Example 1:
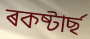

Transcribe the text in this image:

ৰকষ্টাৰ্ছ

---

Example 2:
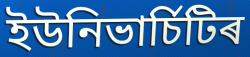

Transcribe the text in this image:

ইউনিভাৰ্চিটিৰ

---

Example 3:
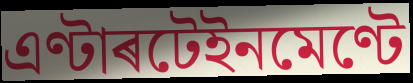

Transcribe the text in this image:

এণ্টাৰটেইনমেণ্টে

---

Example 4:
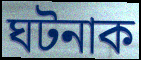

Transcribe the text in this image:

ঘটনাক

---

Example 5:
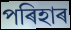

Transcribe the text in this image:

পৰিহাৰ